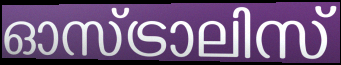
ഓസ്ട്രാലിസ്